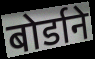
बोर्डाने